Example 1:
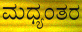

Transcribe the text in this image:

ಮಧ್ಯಂತರ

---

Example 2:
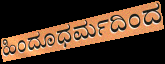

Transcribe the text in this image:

ಹಿಂದೂಧರ್ಮದಿಂದ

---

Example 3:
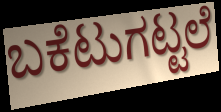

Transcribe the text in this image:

ಬಕೆಟುಗಟ್ಟಲೆ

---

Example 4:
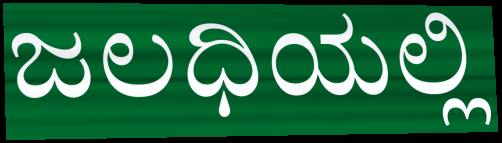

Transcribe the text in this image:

ಜಲಧಿಯಲ್ಲಿ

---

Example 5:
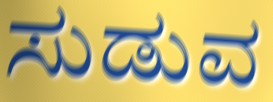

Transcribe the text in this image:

ಸುಡುವ